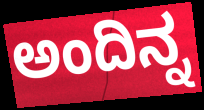
ಅಂದಿನ್ನ